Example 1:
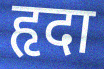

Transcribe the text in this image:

हृदा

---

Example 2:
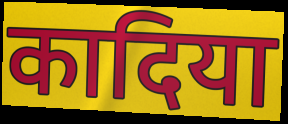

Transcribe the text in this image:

कादिया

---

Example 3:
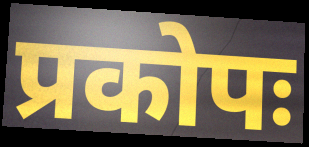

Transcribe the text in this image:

प्रकोपः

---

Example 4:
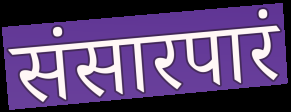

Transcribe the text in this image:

संसारपारं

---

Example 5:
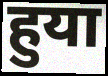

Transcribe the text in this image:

हुया